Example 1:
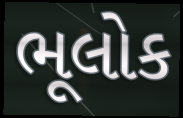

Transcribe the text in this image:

ભૂલોક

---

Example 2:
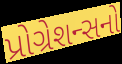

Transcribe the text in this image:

પ્રોગ્રેશન્સનો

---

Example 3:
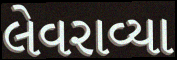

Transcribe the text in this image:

લેવરાવ્યા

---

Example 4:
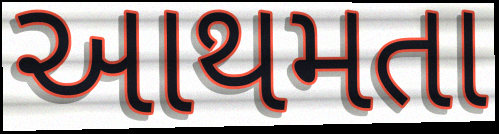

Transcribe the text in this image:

આથમતા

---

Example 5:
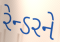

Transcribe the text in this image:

રેન્ડરને